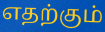
எதற்கும்